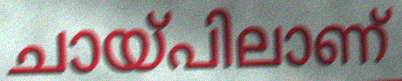
ചായ്പിലാണ്